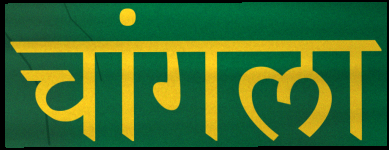
चांगला